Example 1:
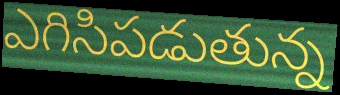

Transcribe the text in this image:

ఎగిసిపడుతున్న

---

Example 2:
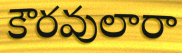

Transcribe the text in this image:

కౌరవులారా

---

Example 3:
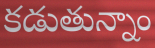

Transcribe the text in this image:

కడుతున్నాం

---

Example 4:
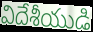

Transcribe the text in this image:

విదేశీయుడి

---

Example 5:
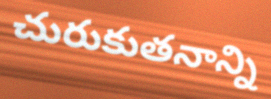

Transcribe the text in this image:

చురుకుతనాన్ని